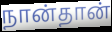
நான்தான்